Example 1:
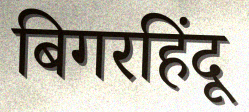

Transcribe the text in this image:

बिगरहिंदू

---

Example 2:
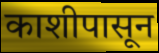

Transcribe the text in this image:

काशीपासून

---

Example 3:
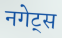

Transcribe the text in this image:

नगेट्स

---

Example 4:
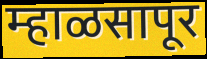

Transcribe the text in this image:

म्हाळसापूर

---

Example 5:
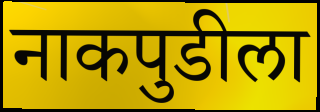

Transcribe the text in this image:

नाकपुडीला